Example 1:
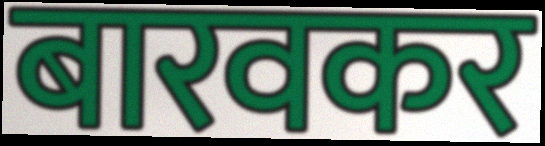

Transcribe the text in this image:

बारवकर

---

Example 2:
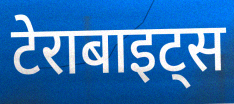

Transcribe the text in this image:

टेराबाइट्स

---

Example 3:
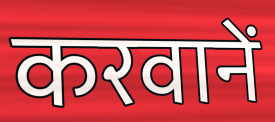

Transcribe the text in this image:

करवानें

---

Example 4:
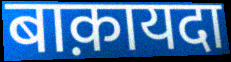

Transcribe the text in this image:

बाक़ायदा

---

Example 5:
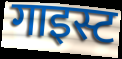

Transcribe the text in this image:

गाइस्ट